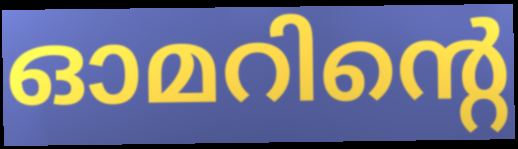
ഓമറിന്റെ